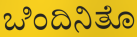
ಒಿಂದಿನಿತೊ